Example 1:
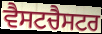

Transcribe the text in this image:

ਵੈਸਟਚੈਸਟਰ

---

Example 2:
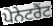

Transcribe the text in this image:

ਪੇਨੇਟਰੈਂਟ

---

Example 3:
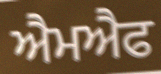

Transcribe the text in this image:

ਐਮਐਫ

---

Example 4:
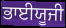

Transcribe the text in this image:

ਭਾਈਯੂਜੀ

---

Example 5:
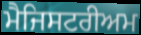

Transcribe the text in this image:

ਮੈਜਿਸਟਰੀਅਮ